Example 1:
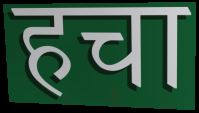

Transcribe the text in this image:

हचा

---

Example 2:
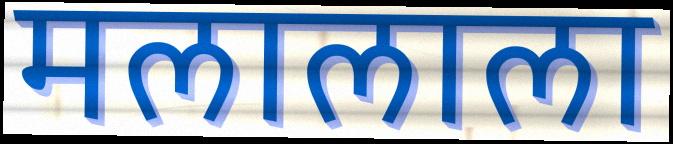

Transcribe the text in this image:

मलालाला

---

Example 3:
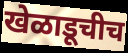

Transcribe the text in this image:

खेळाडूचीच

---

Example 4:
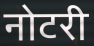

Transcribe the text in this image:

नोटरी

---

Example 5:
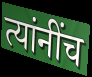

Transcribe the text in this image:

त्यांनींच